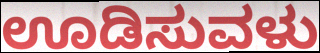
ಊಡಿಸುವಳು